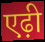
एढ़ी